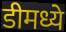
डीमध्ये